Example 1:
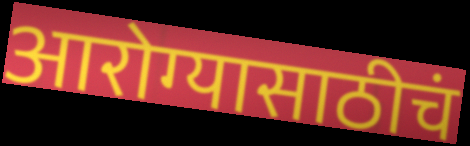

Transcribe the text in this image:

आरोग्यासाठीचं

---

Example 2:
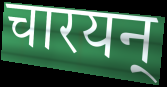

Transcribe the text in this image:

चारयन्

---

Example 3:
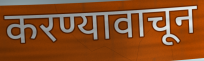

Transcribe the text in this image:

करण्यावाचून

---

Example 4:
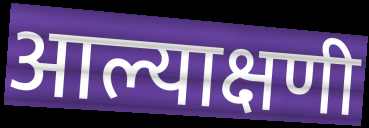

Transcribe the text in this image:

आल्याक्षणी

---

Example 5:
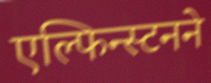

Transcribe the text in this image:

एल्फिन्स्टनने